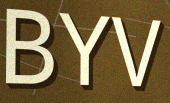
BYV